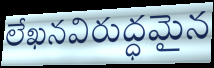
లేఖనవిరుద్ధమైన